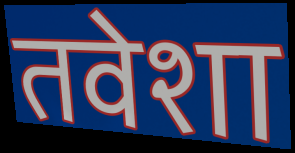
तवेशा